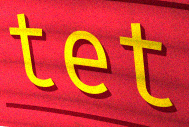
tet